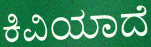
ಕಿವಿಯಾದೆ